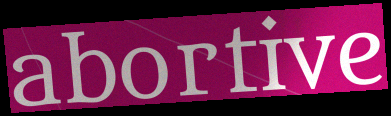
abortive